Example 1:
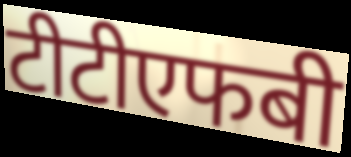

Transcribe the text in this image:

टीटीएफबी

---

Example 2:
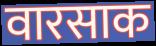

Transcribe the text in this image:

वारसाक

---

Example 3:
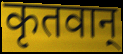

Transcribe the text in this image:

कृतवान्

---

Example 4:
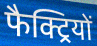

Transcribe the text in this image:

फैक्ट्रियों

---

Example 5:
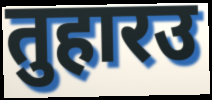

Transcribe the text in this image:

तुहारउ